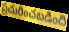
ప్రచురించబడింది